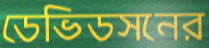
ডেভিডসনের